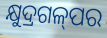
କ୍ଷୁଦ୍ରଗଳ୍‌ପର